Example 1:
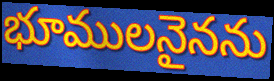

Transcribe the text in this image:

భూములనైనను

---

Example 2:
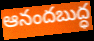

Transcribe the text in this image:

ఆనందబుద్ధ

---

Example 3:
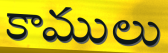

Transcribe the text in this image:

కాములు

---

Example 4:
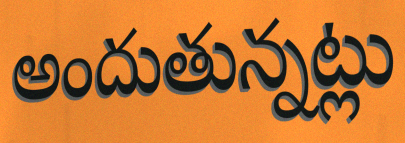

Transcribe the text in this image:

అందుతున్నట్లు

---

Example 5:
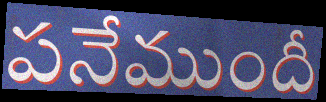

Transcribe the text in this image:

పనేముందీ